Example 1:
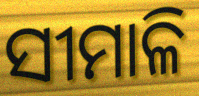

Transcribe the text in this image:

ସୀମାଳି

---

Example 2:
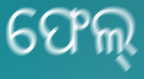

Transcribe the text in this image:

ଫେଲ୍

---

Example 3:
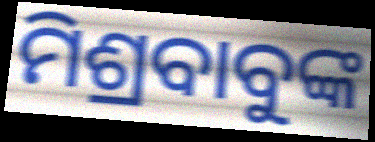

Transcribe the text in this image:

ମିଶ୍ରବାବୁଙ୍କ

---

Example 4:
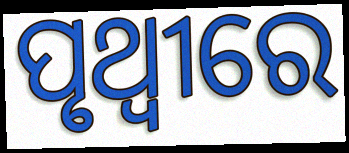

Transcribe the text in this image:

ପୃଥ୍ୱୀରେ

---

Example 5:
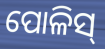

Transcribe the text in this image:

ପୋଳିସ୍